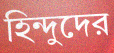
হিন্দুদের